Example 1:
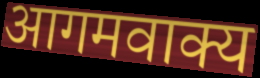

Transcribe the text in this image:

आगमवाक्य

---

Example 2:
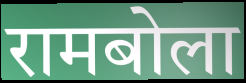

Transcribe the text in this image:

रामबोला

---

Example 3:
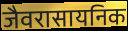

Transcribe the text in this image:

जैवरासायनिक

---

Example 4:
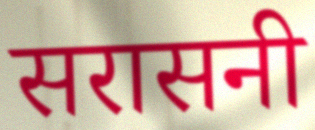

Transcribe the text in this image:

सरासनी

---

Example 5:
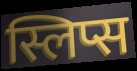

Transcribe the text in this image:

स्लिप्स